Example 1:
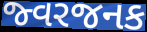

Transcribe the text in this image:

જ્વરજનક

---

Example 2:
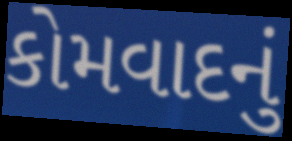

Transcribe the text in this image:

કોમવાદનું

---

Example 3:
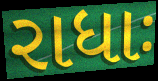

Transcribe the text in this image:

રાધાઃ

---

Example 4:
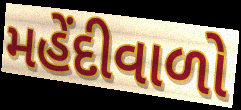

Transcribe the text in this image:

મહેંદીવાળો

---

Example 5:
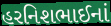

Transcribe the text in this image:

હરનિશભાઈનાં